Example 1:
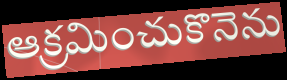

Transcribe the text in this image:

ఆక్రమించుకొనెను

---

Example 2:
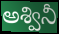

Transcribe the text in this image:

అశ్వినీ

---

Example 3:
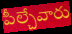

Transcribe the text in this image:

పీల్చేవారు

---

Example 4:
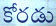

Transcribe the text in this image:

కోరడు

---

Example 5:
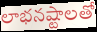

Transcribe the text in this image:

లాభనష్టాలతో